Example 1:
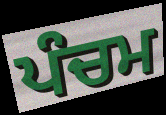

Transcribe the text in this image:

ਪੰਚਮ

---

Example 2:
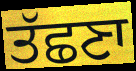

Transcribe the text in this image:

ਤੱਛਣਾ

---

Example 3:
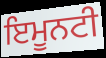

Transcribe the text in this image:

ਇਮੂਨਟੀ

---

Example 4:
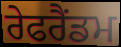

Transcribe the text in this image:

ਰੇਫਰੈਂਡਮ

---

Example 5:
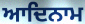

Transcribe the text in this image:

ਆਦਿਨਾਮ